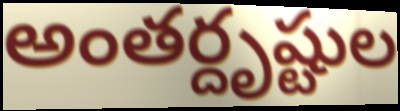
అంతర్దృష్టుల